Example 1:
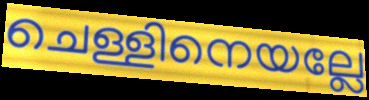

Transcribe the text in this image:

ചെള്ളിനെയല്ലേ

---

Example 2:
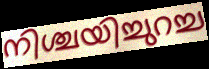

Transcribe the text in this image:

നിശ്ചയിച്ചുറച്ച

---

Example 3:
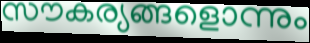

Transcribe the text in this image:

സൗകര്യങ്ങളൊന്നും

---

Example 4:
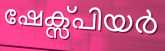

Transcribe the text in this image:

ഷേക്സ്പിയർ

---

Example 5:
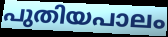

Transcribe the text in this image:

പുതിയപാലം